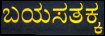
ಬಯಸತಕ್ಕ